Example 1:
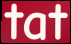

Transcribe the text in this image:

tat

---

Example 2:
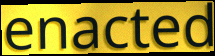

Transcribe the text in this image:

enacted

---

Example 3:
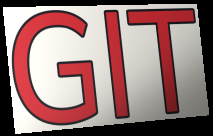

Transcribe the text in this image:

GIT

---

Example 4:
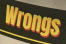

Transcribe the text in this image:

Wrongs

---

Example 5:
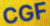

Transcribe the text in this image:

CGF